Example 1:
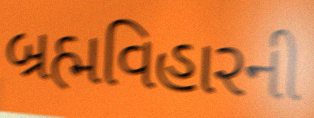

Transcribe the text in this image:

બ્રહ્મવિહારની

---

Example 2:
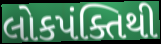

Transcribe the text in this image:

લોકપંક્તિથી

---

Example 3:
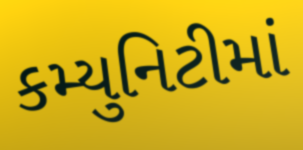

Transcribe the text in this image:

કમ્યુનિટીમાં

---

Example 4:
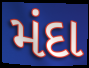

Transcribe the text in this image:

મંદા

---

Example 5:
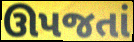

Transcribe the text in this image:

ઊપજતાં